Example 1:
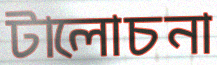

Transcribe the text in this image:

টালোচনা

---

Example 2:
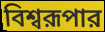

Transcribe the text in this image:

বিশ্বরূপার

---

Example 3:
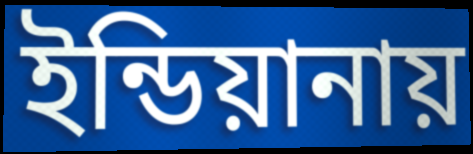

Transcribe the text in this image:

ইন্ডিয়ানায়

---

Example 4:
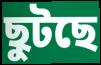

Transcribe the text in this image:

ছুটছে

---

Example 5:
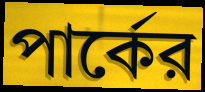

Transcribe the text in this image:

পার্কের